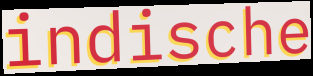
indische